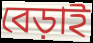
বেড়াই